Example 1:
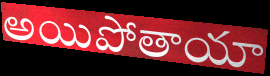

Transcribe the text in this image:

అయిపోతాయా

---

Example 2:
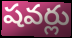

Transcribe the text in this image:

షవర్లు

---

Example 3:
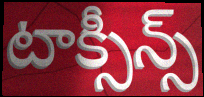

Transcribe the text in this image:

టాక్సీన్స్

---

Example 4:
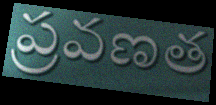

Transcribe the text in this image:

ప్రవణత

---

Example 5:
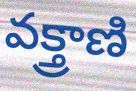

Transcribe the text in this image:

వక్త్రాణి